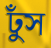
ঢুঁস